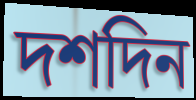
দশদিন